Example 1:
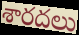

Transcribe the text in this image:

శారదలు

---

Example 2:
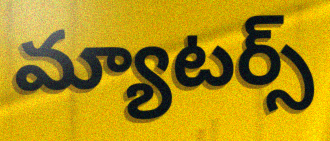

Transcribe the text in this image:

మ్యాటర్స్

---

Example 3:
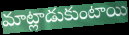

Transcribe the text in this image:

మాట్లాడుకుంటాయి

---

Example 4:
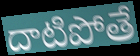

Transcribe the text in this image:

దాటిపోతే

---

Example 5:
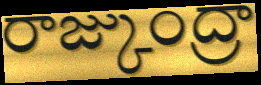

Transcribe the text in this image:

రాజ్కుంద్రా